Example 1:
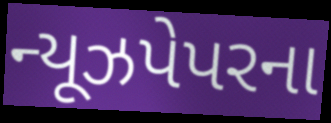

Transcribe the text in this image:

ન્યૂઝપેપરના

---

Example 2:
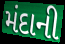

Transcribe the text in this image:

મંદાની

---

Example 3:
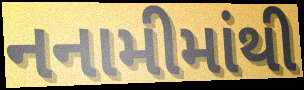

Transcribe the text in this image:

નનામીમાંથી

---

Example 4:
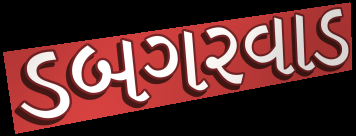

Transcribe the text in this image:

ડબગરવાડ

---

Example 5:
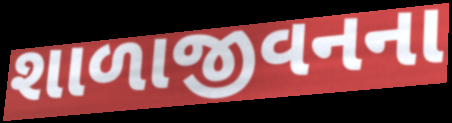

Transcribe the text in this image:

શાળાજીવનના